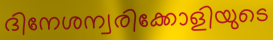
ദിനേശന്വരിക്കോളിയുടെ